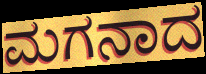
ಮಗನಾದ